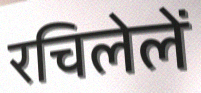
रचिलेलें